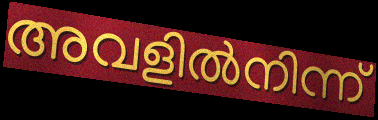
അവളിൽനിന്ന്